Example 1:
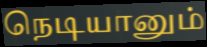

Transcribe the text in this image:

நெடியானும்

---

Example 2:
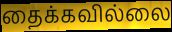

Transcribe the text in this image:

தைக்கவில்லை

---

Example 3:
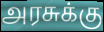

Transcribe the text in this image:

அரசுக்கு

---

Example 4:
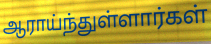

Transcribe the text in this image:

ஆராய்ந்துள்ளார்கள்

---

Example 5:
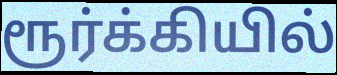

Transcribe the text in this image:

ரூர்க்கியில்